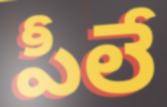
పీలే